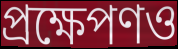
প্রক্ষেপণও